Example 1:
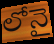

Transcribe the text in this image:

లోనై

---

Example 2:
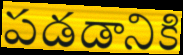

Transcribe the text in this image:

పడడానికి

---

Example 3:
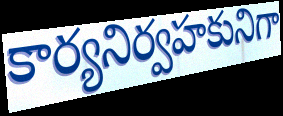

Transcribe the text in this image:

కార్యనిర్వహకునిగా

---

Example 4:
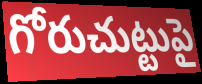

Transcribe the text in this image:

గోరుచుట్టుపై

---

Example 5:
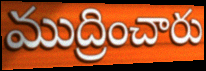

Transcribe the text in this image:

ముద్రించారు